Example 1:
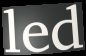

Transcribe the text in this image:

led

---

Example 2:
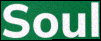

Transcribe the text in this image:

Soul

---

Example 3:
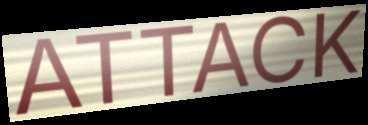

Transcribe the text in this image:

ATTACK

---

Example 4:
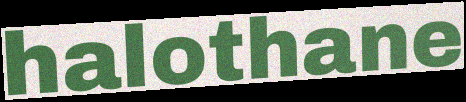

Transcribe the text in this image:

halothane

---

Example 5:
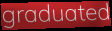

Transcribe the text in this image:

graduated